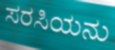
ಸರಸಿಯನು